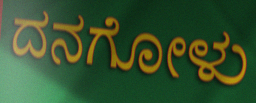
ದನಗೋಳು